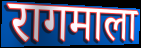
रागमाला